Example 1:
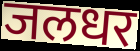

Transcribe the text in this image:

जलधर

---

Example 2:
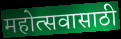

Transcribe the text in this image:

महोत्सवासाठी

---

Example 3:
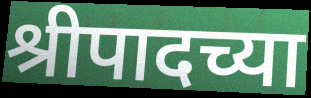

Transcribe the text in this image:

श्रीपादच्या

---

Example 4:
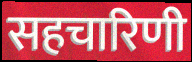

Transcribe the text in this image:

सहचारिणी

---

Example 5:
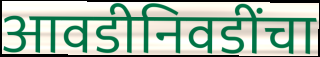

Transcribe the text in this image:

आवडीनिवडींचा